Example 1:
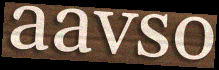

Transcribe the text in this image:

aavso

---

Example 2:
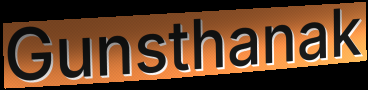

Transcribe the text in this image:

Gunsthanak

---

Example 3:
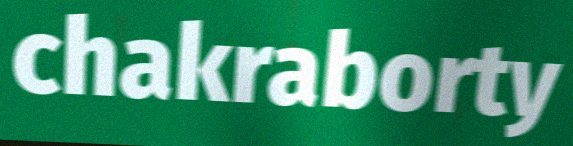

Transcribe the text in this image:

chakraborty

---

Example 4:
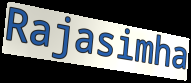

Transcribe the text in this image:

Rajasimha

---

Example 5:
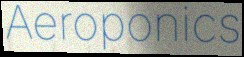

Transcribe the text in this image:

Aeroponics